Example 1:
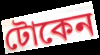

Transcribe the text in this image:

টোকেন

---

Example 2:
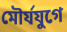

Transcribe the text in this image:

মৌর্যযুগে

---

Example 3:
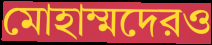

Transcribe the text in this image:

মোহাম্মদেরও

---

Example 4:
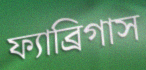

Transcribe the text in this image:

ফ্যাব্রিগাস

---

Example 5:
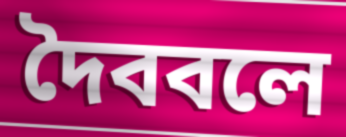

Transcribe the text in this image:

দৈববলে